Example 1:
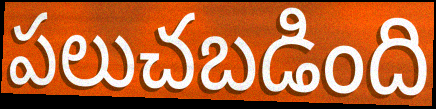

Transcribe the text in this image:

పలుచబడింది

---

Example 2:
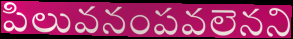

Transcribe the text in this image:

పిలువనంపవలెనని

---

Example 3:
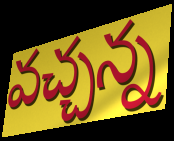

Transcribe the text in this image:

వచ్చన్న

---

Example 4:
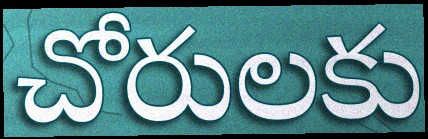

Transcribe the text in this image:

చోరులకు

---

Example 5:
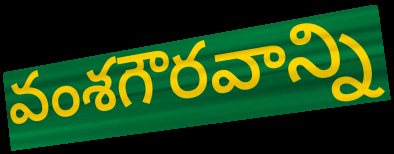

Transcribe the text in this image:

వంశగౌరవాన్ని